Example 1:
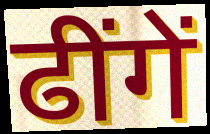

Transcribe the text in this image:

ढींगें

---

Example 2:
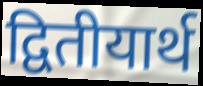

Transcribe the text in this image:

द्वितीयार्थ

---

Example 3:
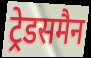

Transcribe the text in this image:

ट्रेडसमैन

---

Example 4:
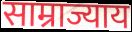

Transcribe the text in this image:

साम्राज्याय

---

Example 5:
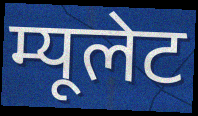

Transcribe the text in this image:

म्यूलेट